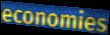
economies